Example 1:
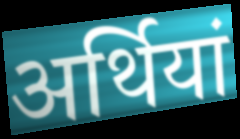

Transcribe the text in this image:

अर्थियां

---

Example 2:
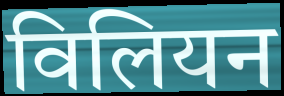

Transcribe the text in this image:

विलियन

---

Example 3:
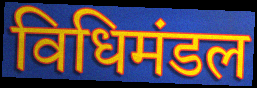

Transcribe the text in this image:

विधिमंडल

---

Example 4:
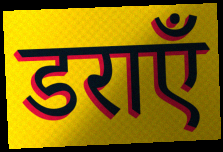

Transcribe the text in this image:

डराएँ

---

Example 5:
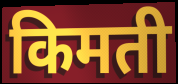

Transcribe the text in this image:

किमती